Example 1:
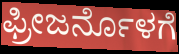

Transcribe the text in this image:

ಫ್ರೀಜರ್ನೊಳಗೆ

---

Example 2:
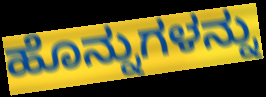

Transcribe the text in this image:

ಹೊನ್ನುಗಳನ್ನು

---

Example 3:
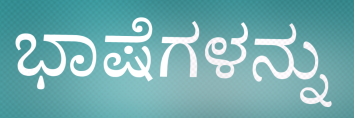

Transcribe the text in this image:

ಭಾಷೆಗಳನ್ನು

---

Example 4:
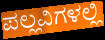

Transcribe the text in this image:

ಪಲ್ಲವಿಗಳಲ್ಲಿ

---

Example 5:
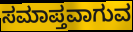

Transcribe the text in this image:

ಸಮಾಪ್ತವಾಗುವ